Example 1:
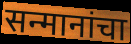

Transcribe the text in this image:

सन्मानांचा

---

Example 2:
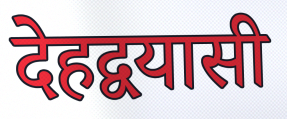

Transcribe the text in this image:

देहद्वयासी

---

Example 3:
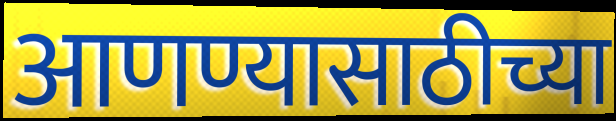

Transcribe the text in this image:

आणण्यासाठीच्या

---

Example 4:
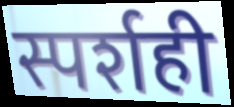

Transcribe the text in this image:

स्पर्शही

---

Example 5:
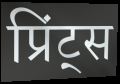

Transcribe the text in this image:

प्रिंट्स